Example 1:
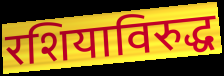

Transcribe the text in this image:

रशियाविरुद्ध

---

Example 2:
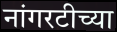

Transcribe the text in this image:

नांगरटीच्या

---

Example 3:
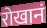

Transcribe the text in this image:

रोखानं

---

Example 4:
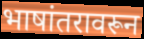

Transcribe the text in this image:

भाषांतरावरून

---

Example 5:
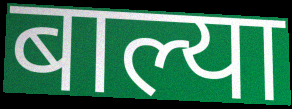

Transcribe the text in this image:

बाल्या